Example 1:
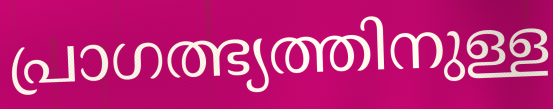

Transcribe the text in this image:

പ്രാഗത്ഭ്യത്തിനുള്ള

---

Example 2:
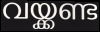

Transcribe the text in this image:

വയ്ക്കണ്ട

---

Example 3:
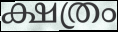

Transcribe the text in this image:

ക്ഷത്രം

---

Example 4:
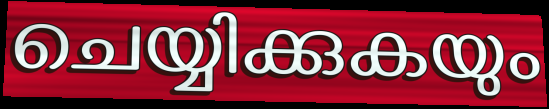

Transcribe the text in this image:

ചെയ്യിക്കുകയും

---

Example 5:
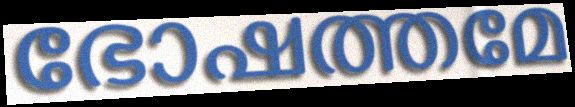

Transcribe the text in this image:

ഭോഷത്തമേ